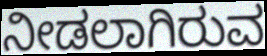
ನೀಡಲಾಗಿರುವ